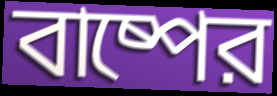
বাষ্পের